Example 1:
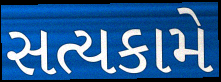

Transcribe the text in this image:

સત્યકામે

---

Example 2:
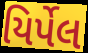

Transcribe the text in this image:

યિર્પેલ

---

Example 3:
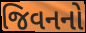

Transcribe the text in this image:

જિવનનો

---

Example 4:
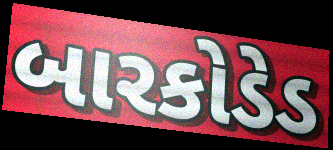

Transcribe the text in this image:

બારકોડેડ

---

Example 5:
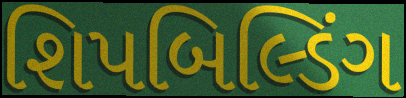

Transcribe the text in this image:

શિપબિલ્ડિંગ